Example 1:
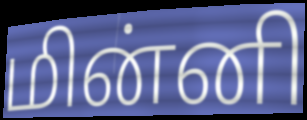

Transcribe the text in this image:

மின்னி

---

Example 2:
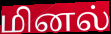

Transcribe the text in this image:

மினல்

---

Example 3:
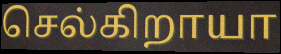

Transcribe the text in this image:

செல்கிறாயா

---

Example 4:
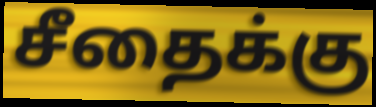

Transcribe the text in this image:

சீதைக்கு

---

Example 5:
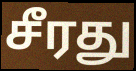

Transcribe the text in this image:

சீரது